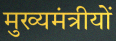
मुख्यमंत्रीयों